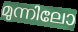
മുന്നിലോ